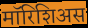
मॉरिशिअस